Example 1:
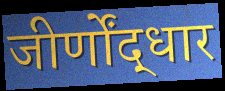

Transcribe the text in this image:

जीर्णोंद्धार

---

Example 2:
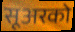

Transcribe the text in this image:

सूअरको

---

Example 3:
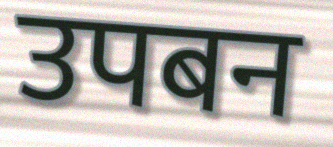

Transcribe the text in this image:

उपबन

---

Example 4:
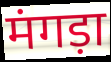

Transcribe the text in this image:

मंगड़ा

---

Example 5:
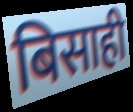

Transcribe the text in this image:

बिसाही